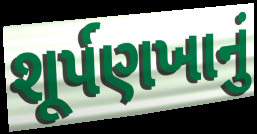
શૂર્પણખાનું